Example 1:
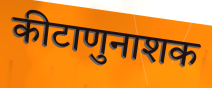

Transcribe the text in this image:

कीटाणुनाशक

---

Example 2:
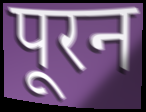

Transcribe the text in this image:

पूरन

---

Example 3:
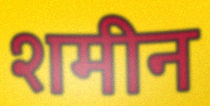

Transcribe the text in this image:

शमीन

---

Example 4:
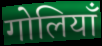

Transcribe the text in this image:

गोलियाँ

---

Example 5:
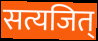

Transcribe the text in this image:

सत्यजित्